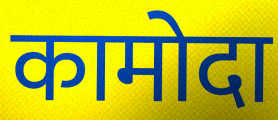
कामोदा